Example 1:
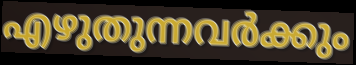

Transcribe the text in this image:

എഴുതുന്നവർക്കും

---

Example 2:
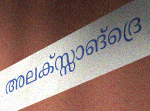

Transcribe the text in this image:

അലക്സ്സാങ്ദ്രെ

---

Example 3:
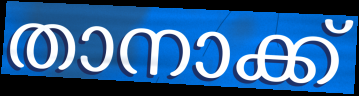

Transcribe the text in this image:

താനാക്ക്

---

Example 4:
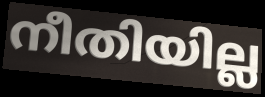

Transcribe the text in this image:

നീതിയില്ല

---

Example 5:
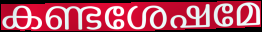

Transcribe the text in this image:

കണ്ടശേഷമേ